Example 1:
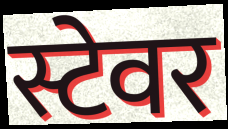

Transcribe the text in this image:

स्टेवर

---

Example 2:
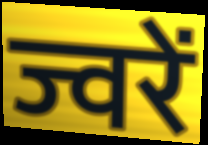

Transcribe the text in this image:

ज्वरें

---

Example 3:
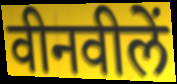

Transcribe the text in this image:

वीनवीलें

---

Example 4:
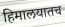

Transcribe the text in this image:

हिमालयातच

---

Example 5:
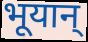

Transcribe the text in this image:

भूयान्